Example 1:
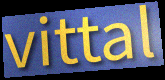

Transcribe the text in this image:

vittal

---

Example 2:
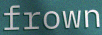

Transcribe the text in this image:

frown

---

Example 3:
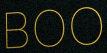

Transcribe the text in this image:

BOO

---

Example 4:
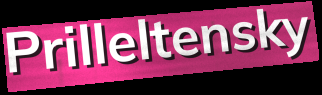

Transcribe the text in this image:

Prilleltensky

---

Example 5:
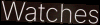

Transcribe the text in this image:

Watches